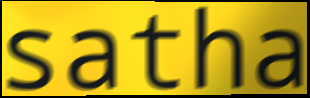
satha